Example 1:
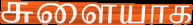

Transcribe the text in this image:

சுளையாக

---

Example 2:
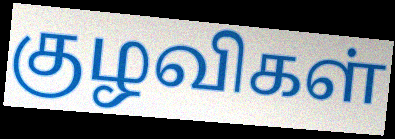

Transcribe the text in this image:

குழவிகள்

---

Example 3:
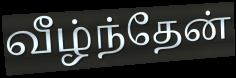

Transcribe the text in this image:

வீழ்ந்தேன்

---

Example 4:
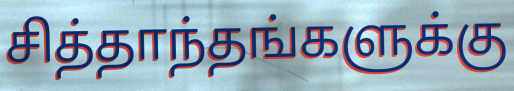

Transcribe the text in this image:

சித்தாந்தங்களுக்கு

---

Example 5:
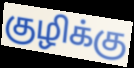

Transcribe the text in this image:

குழிக்கு